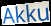
Akku